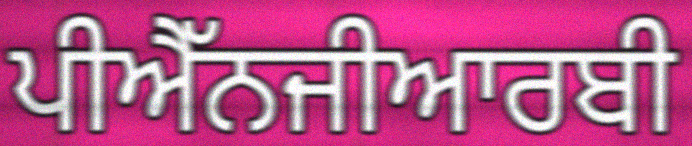
ਪੀਐੱਨਜੀਆਰਬੀ